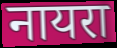
नायरा